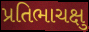
પ્રતિભાચક્ષુ